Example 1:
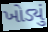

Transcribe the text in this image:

ખોડ્યું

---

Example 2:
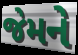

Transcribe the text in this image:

જેમને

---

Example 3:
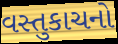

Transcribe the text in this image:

વસ્તુકાચનો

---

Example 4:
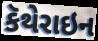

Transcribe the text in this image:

કૅથેરાઇન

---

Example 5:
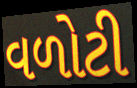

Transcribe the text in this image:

વળોટી